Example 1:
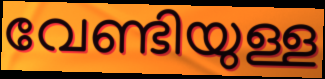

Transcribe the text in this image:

വേണ്ടിയുള്ള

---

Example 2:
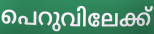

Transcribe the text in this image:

പെറുവിലേക്ക്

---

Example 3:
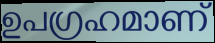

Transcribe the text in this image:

ഉപഗ്രഹമാണ്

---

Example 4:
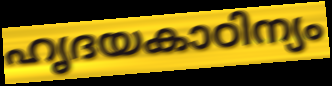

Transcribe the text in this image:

ഹൃദയകാഠിന്യം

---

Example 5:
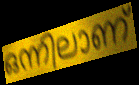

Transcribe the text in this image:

ഒന്നിലാണ്